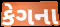
કેગના